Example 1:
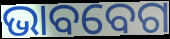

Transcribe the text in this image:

ଭାବବେଗ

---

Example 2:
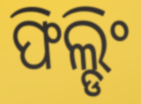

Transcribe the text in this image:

ଫିଲ୍ଡିଂ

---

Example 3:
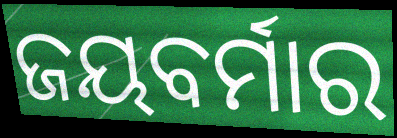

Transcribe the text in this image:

ଜୟବର୍ମାର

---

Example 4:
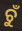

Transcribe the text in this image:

ଚୁଁ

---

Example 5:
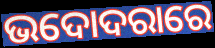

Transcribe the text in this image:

ଭଦୋଦରାରେ